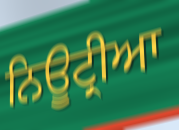
ਨਿਊਟ੍ਰੀਆ